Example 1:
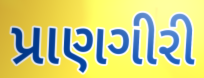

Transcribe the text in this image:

પ્રાણગીરી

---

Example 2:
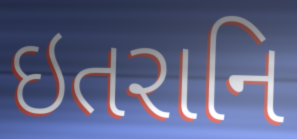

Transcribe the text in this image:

ઇતરાનિ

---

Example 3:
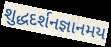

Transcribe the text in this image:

શુદ્ધદર્શનજ્ઞાનમય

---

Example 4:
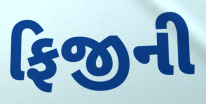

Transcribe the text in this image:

ફિજીની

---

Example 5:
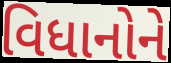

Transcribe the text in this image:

વિધાનોને